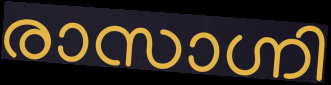
രാസാഗ്നി